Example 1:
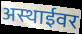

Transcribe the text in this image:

अस्थाईवर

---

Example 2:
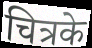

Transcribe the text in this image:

चित्रके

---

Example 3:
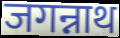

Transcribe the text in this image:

जगन्नाथ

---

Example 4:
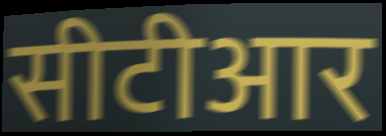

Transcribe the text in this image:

सीटीआर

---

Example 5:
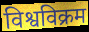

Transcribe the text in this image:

विश्वविक्रम